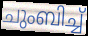
ചുംബിച്ച്